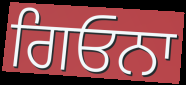
ਗਿਓਨਾ